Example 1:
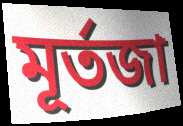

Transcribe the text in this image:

মূর্তজা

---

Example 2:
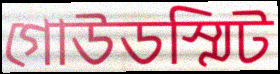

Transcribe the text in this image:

গোউডস্মিট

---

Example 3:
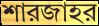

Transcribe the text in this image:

শারজাহর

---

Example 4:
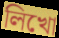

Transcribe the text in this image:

লিখো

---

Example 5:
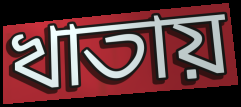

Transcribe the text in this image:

খাতায়